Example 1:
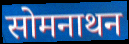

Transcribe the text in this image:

सोमनाथन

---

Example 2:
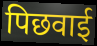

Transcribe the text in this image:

पिछवाई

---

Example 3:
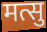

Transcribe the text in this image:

मत्सु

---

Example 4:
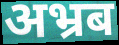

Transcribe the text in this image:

अभ्रब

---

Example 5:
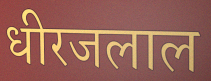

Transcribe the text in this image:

धीरजलाल